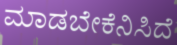
ಮಾಡಬೇಕೆನಿಸಿದೆ